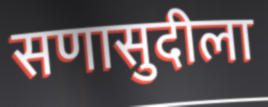
सणासुदीला